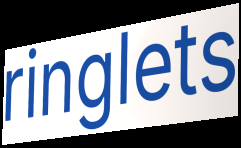
ringlets